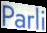
Parli